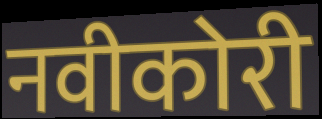
नवीकोरी